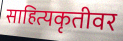
साहित्यकृतीवर